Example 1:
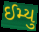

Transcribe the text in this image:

ઈમ્યુ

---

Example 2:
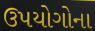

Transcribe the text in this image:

ઉપયોગોના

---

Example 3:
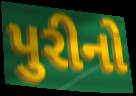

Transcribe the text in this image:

પુરીનો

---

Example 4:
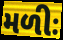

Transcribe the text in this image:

મળીઃ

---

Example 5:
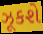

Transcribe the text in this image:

ઝૂકશે